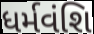
ધર્મવંશિ